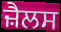
ਜ਼ੈਲਸ